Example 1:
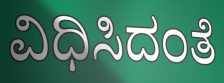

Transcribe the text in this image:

ವಿಧಿಸಿದಂತೆ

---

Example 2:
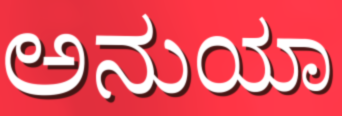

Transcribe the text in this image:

ಅನುಯಾ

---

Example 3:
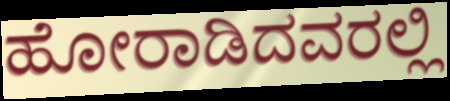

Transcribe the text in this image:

ಹೋರಾಡಿದವರಲ್ಲಿ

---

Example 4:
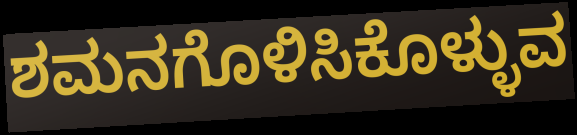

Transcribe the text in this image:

ಶಮನಗೊಳಿಸಿಕೊಳ್ಳುವ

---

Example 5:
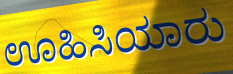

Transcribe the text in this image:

ಊಹಿಸಿಯಾರು